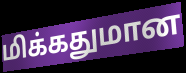
மிக்கதுமான